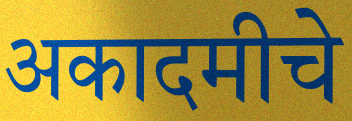
अकादमीचे